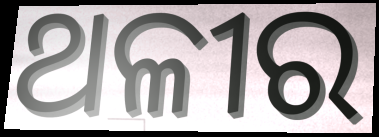
ଥଳୀର